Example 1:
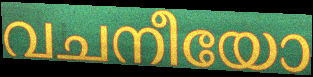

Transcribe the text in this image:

വചനീയോ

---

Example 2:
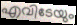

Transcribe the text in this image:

എവിടേയും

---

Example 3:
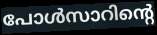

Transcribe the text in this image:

പോൾസാറിന്റെ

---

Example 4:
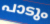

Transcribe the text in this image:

പാടും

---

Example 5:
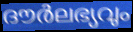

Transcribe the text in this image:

ദൗർലഭ്യവും